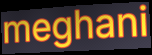
meghani